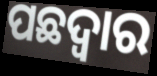
ପଛଦ୍ୱାର